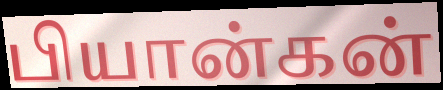
பியான்கன்